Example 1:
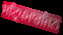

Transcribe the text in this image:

ਸਟ੍ਰਿਪਮਾਰਜਿਨ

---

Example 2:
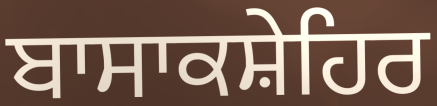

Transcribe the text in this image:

ਬਾਸਾਕਸ਼ੇਹਿਰ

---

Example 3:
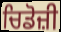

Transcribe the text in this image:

ਚਿਡੋਜ਼ੀ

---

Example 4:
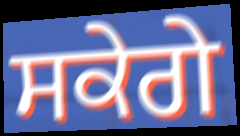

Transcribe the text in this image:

ਸਕੇਗੇ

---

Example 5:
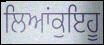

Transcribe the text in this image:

ਲਿਆਂਕੁਇਹੂ